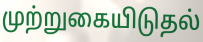
முற்றுகையிடுதல்